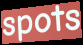
spots